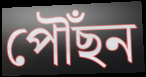
পৌঁছন